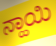
ನ್ಹಾಯಿ